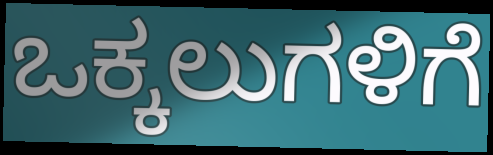
ಒಕ್ಕಲುಗಳಿಗೆ